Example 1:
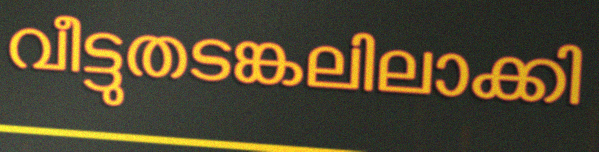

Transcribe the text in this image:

വീട്ടുതടങ്കലിലാക്കി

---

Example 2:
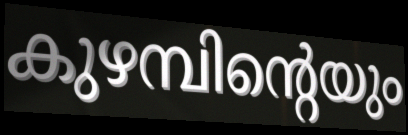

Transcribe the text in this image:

കുഴമ്പിന്റെയും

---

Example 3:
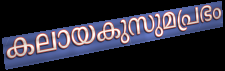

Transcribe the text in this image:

കലായകുസുമപ്രഭം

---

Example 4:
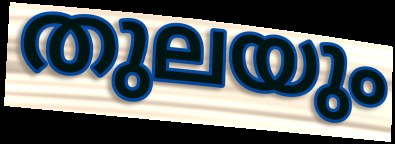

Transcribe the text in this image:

തുലയും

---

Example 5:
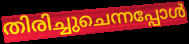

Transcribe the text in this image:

തിരിച്ചുചെന്നപ്പോൾ